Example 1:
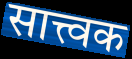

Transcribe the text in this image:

सात्त्वक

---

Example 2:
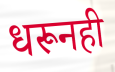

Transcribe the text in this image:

धरूनही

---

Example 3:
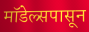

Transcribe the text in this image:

मॉडेल्सपासून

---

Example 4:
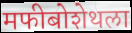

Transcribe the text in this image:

मफीबोशेथला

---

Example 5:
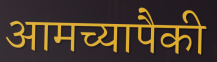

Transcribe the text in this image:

आमच्यापैकी